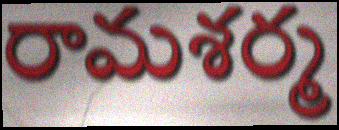
రామశర్మ